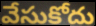
వేసుకోదు